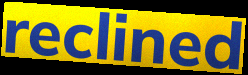
reclined